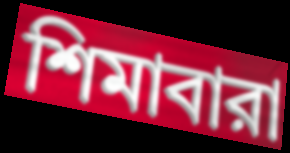
শিমাবারা